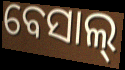
ବେସାଲ୍